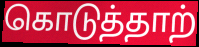
கொடுத்தாற்